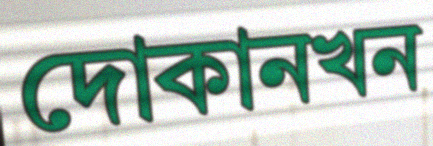
দোকানখন